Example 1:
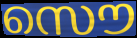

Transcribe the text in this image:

സൌ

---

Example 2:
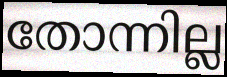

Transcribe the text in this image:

തോന്നില്ല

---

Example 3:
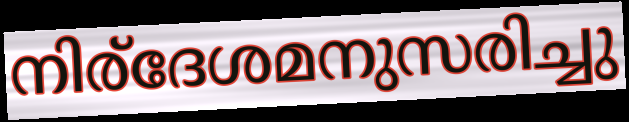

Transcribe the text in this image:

നിര്ദേശമനുസരിച്ചു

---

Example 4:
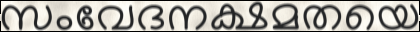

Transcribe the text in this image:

സംവേദനക്ഷമതയെ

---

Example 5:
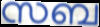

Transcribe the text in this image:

സബ